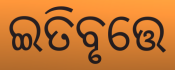
ଇତିବୃତ୍ତେ